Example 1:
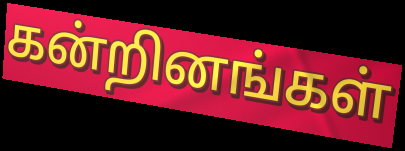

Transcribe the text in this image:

கன்றினங்கள்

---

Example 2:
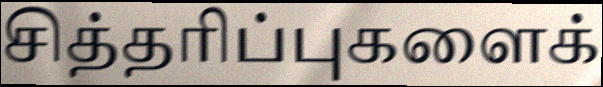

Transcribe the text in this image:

சித்தரிப்புகளைக்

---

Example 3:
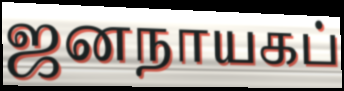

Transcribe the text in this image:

ஜனநாயகப்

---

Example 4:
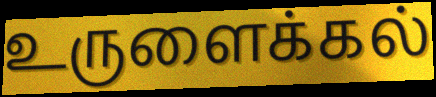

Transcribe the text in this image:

உருளைக்கல்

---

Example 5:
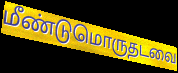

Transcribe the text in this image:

மீண்டுமொருதடவை